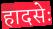
हादसेः